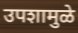
उपशामुळे